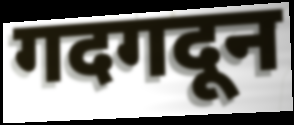
गदगदून